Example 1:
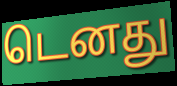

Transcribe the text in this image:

டெனது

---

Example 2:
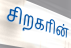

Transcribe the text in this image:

சிறகரின்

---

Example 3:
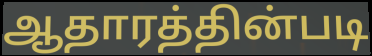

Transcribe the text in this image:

ஆதாரத்தின்படி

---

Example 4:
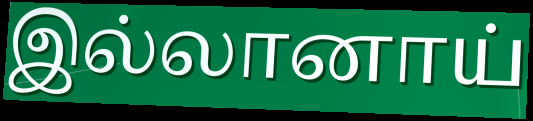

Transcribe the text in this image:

இல்லானாய்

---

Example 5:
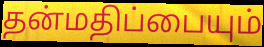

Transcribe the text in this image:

தன்மதிப்பையும்